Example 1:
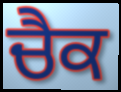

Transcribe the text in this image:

ਚੈਕ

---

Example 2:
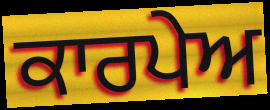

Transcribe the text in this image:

ਕਾਰਪੇਅ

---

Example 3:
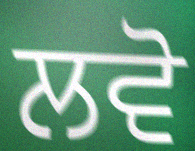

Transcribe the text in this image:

ਲਵੋ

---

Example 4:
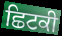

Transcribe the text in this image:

ਛਿਟਕੀ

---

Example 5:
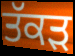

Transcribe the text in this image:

ਤੱਕੜ